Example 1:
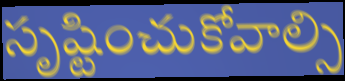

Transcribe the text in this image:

సృష్టించుకోవాల్సి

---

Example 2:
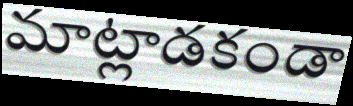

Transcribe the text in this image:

మాట్లాడకండా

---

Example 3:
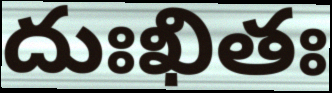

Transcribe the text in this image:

దుఃఖితః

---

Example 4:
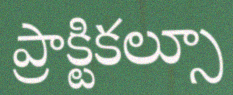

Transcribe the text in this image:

ప్రాక్టికల్సూ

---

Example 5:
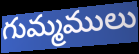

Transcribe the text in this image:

గుమ్మములు